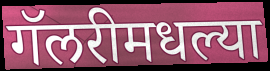
गॅलरीमधल्या